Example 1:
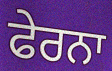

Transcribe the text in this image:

ਫੇਰਨਾ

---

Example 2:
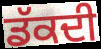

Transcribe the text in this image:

ਡੱਕਦੀ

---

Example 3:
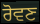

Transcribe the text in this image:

ਰੋਵਣ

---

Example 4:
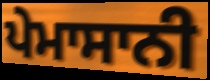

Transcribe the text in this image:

ਪੇਮਾਸਾਨੀ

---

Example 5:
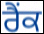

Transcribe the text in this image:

ਰੈੰਕ